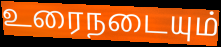
உரைநடையும்